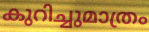
കുറിച്ചുമാത്രം